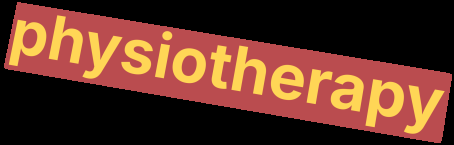
physiotherapy